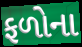
ફળોના